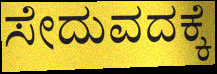
ಸೇದುವದಕ್ಕೆ